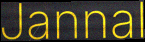
Jannal